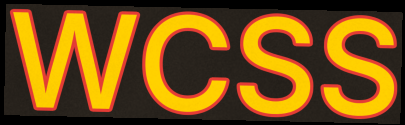
WCSS